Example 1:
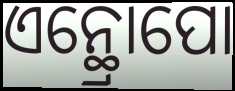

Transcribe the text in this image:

ଏନ୍ଥ୍ରୋପୋ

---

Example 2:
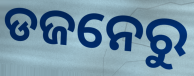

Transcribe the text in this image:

ଡଜନେରୁ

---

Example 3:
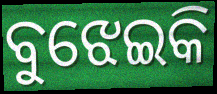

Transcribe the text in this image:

ବୁଝେଇକି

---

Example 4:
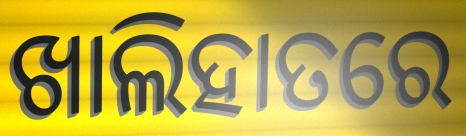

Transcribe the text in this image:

ଖାଲିହାତରେ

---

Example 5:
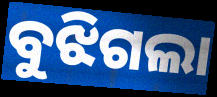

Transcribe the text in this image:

ବୁଝିଗଲା